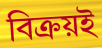
বিক্রয়ই